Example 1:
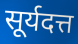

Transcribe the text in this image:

सूर्यदत्त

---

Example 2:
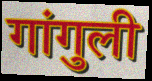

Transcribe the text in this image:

गांगुली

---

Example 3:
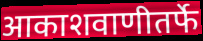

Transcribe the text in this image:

आकाशवाणीतर्फे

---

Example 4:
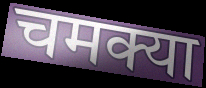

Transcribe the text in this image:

चमक्या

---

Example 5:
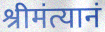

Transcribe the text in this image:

श्रीमंत्यानं